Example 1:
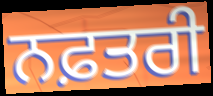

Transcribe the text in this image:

ਨਫ਼ਤਰੀ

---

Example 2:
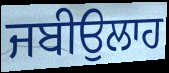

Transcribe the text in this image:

ਜਬੀਉਲਾਹ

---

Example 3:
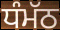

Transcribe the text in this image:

ਧੰਮੱਠ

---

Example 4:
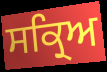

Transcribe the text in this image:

ਸਕ੍ਰਿਅ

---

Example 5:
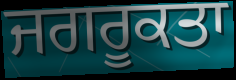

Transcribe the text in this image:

ਜਗਰੂਕਤਾ